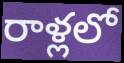
రాళ్లలో